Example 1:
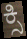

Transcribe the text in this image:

ಕ್ಸಿ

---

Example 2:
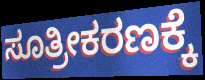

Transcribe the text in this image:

ಸೂತ್ರೀಕರಣಕ್ಕೆ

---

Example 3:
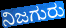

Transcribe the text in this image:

ನಿಜಗುರು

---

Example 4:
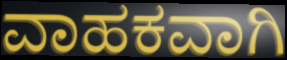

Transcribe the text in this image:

ವಾಹಕವಾಗಿ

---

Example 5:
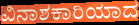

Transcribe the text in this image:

ವಿನಾಶಕಾರಿಯಾದ